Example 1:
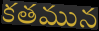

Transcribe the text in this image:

కతమున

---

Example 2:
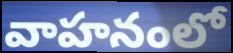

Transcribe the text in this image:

వాహనంలో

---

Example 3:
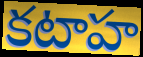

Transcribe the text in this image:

కటాహ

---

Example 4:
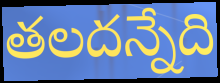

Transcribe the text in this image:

తలదన్నేది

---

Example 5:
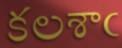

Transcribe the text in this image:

కలశాఁ